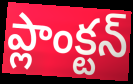
ప్లాంక్టన్